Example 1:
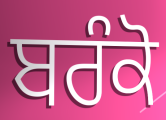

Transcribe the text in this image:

ਬਰੰਕੋ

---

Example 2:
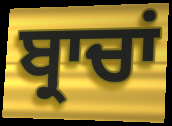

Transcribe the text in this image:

ਬ੍ਰਾਚਾਂ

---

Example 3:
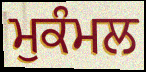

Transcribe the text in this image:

ਮੁਕੰਮਲ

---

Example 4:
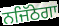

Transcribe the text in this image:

ਨਜਿੱਠੇਗਾ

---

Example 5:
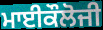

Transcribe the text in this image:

ਮਾਈਕੌਲੋਜੀ